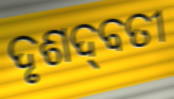
ଦୃଶଦ୍‌ବତୀ